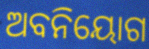
ଅବନିୟୋଗ